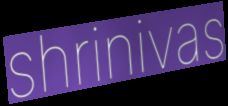
shrinivas